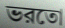
ভরতো